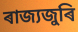
ৰাজ্যজুৰি